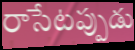
రాసేటప్పుడు